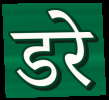
डरे